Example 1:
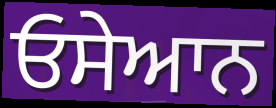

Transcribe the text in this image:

ਓਸੇਆਨ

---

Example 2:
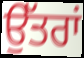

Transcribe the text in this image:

ਉੱਤਰਾਂ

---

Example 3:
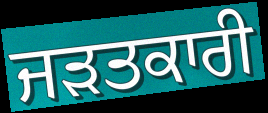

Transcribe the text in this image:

ਜੜਤਕਾਰੀ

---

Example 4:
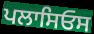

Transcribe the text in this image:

ਪਲਾਸਿਓਸ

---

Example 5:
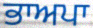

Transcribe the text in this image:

ਭਾਅਪਾ